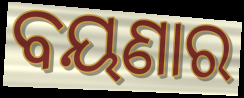
ବୟଣାର